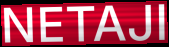
NETAJI